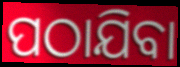
ପଠାଯିବା